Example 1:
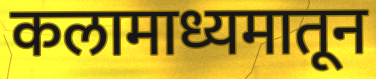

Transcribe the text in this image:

कलामाध्यमातून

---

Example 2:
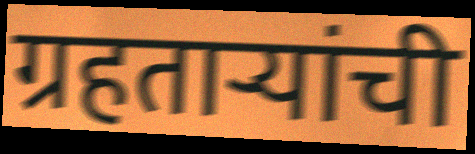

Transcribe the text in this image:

ग्रहताऱ्यांची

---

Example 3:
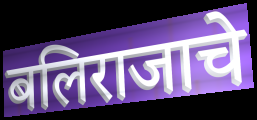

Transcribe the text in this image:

बलिराजाचे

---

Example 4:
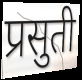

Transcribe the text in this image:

प्रसुती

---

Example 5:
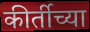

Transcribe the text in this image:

कीर्तीच्या